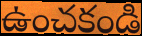
ఉంచకండి